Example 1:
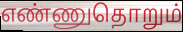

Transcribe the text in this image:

எண்ணுதொறும்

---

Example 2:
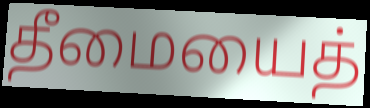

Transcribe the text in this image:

தீமையைத்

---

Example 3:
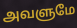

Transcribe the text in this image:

அவளுமே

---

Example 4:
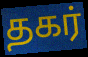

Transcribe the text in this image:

தகர்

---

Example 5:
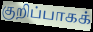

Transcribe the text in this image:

குறிப்பாகக்